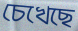
চেখেছে